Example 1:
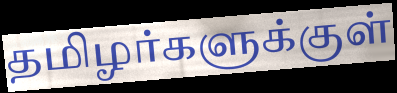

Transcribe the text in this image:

தமிழர்களுக்குள்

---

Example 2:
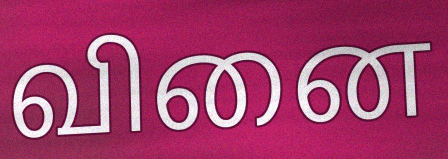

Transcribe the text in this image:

வினை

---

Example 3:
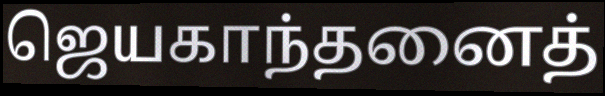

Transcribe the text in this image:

ஜெயகாந்தனைத்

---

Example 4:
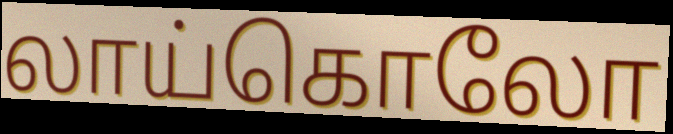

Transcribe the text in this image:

லாய்கொலோ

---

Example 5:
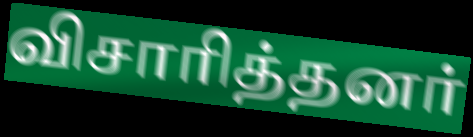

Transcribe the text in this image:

விசாரித்தனர்